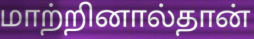
மாற்றினால்தான்